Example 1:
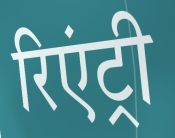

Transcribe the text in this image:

रिएंट्री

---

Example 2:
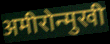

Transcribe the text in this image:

अमीरोन्मुखी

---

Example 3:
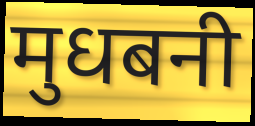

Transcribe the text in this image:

मुधबनी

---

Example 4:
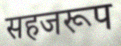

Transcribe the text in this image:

सहजरूप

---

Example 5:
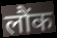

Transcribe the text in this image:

लौंक